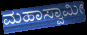
ಮಹಾಸ್ವಾಮೀ